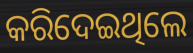
କରିଦେଇଥିଲେ